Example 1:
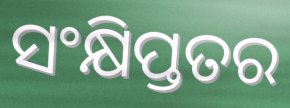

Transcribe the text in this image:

ସଂକ୍ଷିପ୍ତତର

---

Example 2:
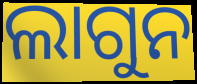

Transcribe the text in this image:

ଲାଗୁନ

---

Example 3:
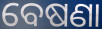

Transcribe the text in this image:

ବେଷଣା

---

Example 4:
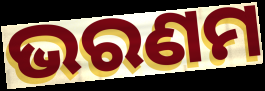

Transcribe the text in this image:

ଭରଣମ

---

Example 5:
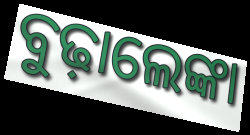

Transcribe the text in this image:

ବୁଢ଼ାଲେଙ୍କା